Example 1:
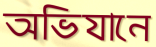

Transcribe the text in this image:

অভিযানে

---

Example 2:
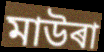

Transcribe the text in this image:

মাউৰা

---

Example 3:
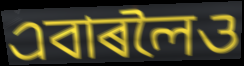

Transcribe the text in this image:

এবাৰলৈও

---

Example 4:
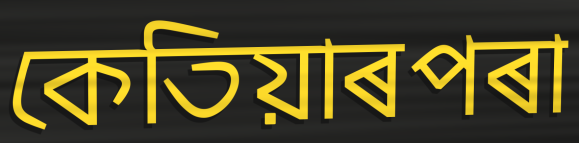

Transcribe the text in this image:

কেতিয়াৰপৰা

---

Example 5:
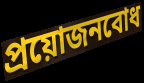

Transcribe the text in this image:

প্ৰয়োজনবোধ